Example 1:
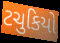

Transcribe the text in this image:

ટચુકિયો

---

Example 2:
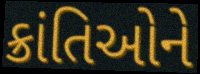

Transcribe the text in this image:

ક્રાંતિઓને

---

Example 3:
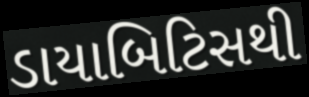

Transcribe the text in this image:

ડાયાબિટિસથી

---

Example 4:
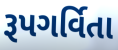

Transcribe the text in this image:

રૂપગર્વિતા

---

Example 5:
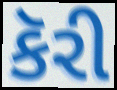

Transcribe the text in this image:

કૅરી